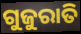
ଗୁଜୁରାତି